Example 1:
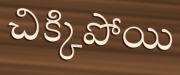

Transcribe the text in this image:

చిక్కిపోయి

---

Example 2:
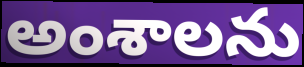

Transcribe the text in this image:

అంశాలను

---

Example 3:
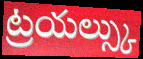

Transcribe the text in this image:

ట్రయల్స్కు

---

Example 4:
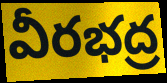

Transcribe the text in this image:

వీరభద్ర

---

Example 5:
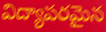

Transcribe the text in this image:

విద్యాపరమైన